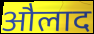
औलाद